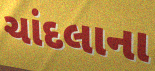
ચાંદલાના